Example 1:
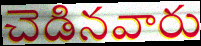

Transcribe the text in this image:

చెడినవారు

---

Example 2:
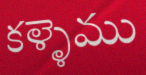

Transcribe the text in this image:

కళ్ళెము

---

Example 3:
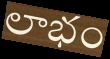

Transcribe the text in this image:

లాభం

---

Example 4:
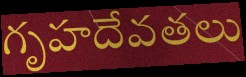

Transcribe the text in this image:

గృహదేవతలు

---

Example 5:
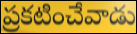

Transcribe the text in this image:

ప్రకటించేవాడు